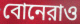
বোনেরাও